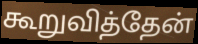
கூறுவித்தேன்